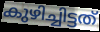
കുഴിച്ചിട്ടത്